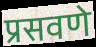
प्रसवणे